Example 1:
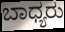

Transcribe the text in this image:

ಬಾಧ್ಯರು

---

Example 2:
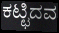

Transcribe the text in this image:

ಕಟ್ಟಿದವ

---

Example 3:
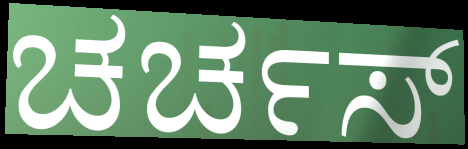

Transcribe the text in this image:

ಚರ್ಚಸ್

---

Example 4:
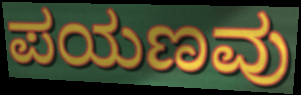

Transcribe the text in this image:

ಪಯಣವು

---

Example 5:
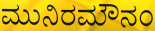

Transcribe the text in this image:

ಮುನಿರಮೌನಂ